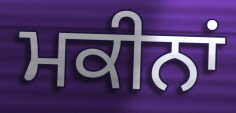
ਮਕੀਨਾਂ